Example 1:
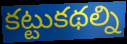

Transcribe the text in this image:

కట్టుకథల్ని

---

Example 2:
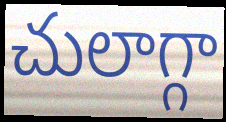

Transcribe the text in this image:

చులాగ్గా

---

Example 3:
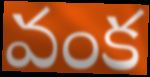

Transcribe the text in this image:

వంక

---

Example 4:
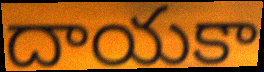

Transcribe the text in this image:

దాయకా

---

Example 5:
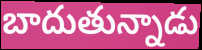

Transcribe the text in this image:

బాదుతున్నాడు